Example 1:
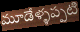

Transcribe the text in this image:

మూడేళ్ళప్పటి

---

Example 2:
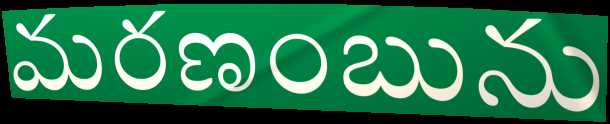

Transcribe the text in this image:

మరణంబును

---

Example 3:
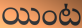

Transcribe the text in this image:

యింట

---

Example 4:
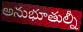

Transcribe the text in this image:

అనుభూతుల్నీ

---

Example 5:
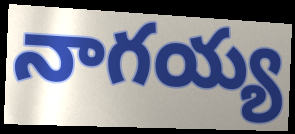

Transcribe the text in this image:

నాగయ్య